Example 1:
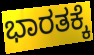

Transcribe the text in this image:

ಭಾರತಕ್ಕೆ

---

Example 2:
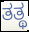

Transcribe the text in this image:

ತತ್ಥ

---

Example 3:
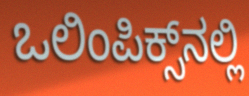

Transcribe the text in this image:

ಒಲಿಂಪಿಕ್ಸ್‌ನಲ್ಲಿ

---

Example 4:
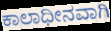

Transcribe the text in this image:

ಕಾಲಾಧೀನವಾಗಿ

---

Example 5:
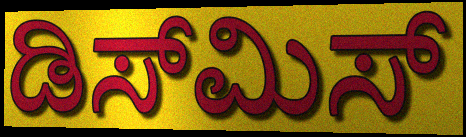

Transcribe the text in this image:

ಡಿಸ್‌ಮಿಸ್